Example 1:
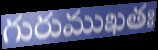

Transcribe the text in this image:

గురుముఖతః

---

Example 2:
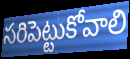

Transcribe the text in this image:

సరిపెట్టుకోవాలి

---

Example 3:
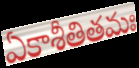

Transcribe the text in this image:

ఏకాశీతితమః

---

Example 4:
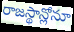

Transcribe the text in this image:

రాజస్థాన్లోనూ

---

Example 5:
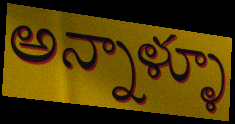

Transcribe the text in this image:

అన్నాళ్ళూ